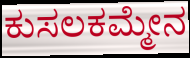
ಕುಸಲಕಮ್ಮೇನ